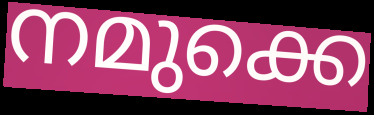
നമുക്കെ